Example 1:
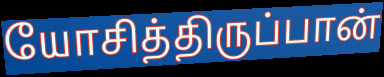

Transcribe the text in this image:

யோசித்திருப்பான்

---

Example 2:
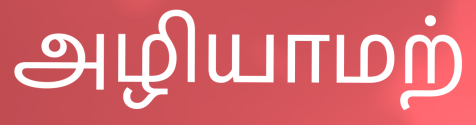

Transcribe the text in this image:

அழியாமற்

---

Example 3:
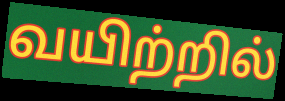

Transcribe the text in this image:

வயிற்றில்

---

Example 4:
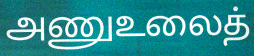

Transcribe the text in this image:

அணுஉலைத்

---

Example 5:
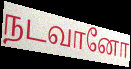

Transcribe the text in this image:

நடவானோ